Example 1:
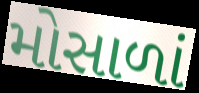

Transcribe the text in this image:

મોસાળાં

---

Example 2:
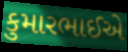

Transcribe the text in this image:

કુમારભાઈએ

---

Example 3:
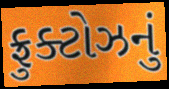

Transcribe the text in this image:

ફ્રુક્ટોઝનું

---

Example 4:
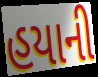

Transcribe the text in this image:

હયાની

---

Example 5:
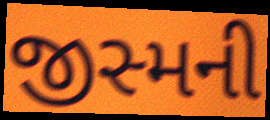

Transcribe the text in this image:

જીસ્મની